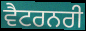
ਵੈਟਰਨਰੀ